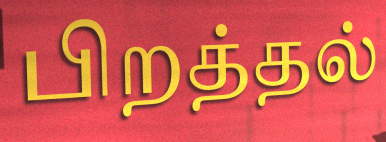
பிறத்தல்